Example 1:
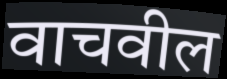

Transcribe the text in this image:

वाचवील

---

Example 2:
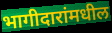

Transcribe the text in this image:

भागीदारांमधील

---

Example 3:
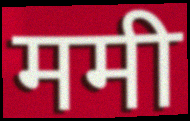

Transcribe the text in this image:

ममी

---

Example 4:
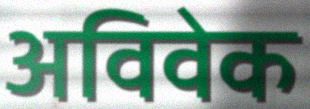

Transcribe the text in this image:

अविवेक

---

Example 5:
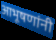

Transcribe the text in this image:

आभूषणांनी